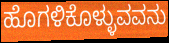
ಹೊಗಳಿಕೊಳ್ಳುವವನು